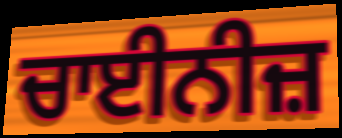
ਚਾਈਨੀਜ਼